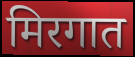
मिरगात